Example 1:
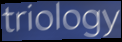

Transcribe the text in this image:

triology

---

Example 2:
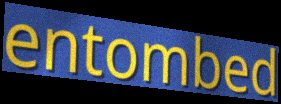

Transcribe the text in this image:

entombed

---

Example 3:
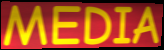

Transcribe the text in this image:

MEDIA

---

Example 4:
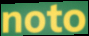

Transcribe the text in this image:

noto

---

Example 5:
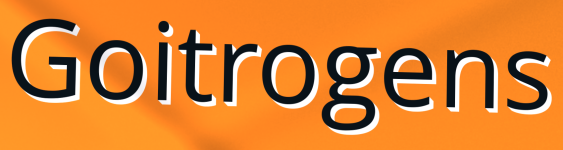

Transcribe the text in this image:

Goitrogens